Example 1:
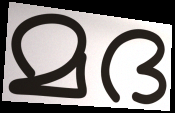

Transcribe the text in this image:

മദ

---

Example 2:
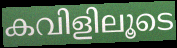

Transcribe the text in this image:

കവിളിലൂടെ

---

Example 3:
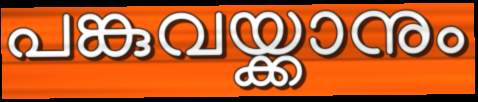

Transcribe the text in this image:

പങ്കുവയ്ക്കാനും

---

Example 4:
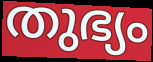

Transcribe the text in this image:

തുഭ്യം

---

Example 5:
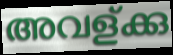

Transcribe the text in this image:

അവള്ക്കു